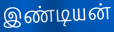
இண்டியன்